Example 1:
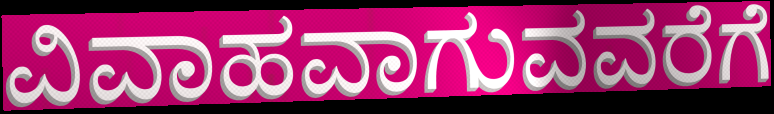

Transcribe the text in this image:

ವಿವಾಹವಾಗುವವರೆಗೆ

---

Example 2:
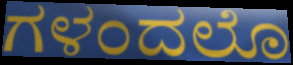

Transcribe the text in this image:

ಗಳಂದಲೊ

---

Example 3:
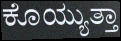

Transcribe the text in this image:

ಕೊಯ್ಯುತ್ತಾ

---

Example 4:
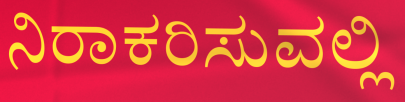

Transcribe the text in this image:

ನಿರಾಕರಿಸುವಲ್ಲಿ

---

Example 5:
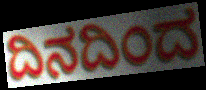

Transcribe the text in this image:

ದಿನದಿಂದ